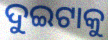
ଦୁଇଟାକୁ